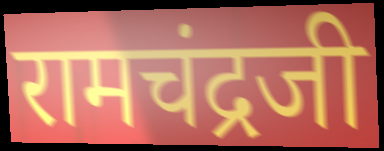
रामचंद्रजी